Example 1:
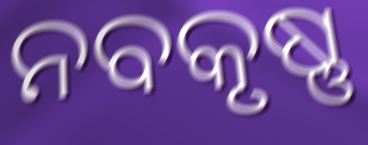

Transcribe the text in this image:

ନବକୃଷ୍ଣ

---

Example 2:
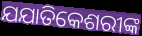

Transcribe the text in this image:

ଯଯାତିକେଶରୀଙ୍କ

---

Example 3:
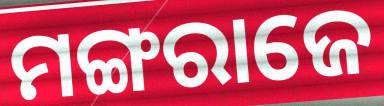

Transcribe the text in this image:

ମଙ୍ଗରାଜେ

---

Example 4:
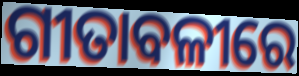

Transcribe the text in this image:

ଗୀତାବଳୀରେ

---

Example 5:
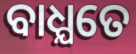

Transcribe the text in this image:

ବାଧ୍ଯତେ